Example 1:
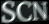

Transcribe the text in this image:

SCN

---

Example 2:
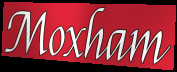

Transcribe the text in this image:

Moxham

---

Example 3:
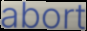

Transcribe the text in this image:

abort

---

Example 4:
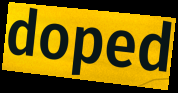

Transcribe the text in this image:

doped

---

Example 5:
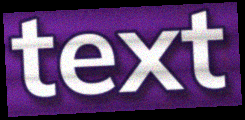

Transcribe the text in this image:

text